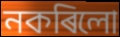
নকৰিলো